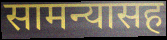
सामन्यासह